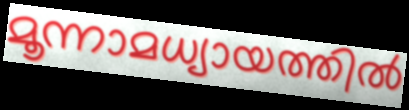
മൂന്നാമധ്യായത്തിൽ